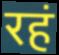
रहं